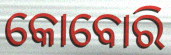
କୋବୋରି